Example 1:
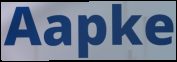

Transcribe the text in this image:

Aapke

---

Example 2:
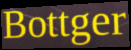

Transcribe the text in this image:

Bottger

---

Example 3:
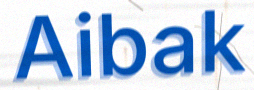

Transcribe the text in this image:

Aibak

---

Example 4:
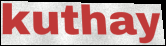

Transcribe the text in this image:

kuthay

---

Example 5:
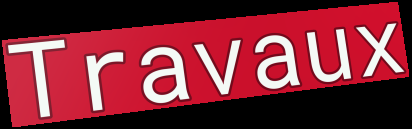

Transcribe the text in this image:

Travaux